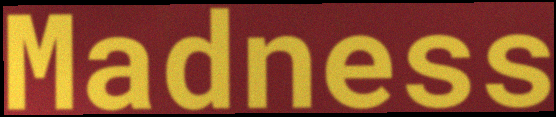
Madness